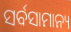
ସର୍ବସାମାନ୍ୟ